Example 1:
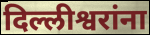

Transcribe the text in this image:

दिल्लीश्वरांना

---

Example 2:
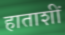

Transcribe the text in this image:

हाताशीं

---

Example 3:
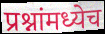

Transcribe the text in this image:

प्रश्नांमध्येच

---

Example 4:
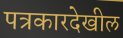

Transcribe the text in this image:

पत्रकारदेखील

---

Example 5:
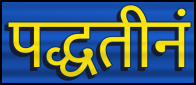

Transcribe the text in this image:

पद्धतीनं